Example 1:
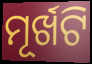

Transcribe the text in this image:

ମୂର୍ଖଟି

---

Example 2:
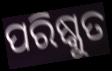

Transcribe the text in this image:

ପରିଷ୍କୁତ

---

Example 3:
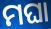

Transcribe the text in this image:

ମଘା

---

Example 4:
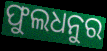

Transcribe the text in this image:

ଫୁଲଧନୁର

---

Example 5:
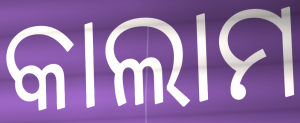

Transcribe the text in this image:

କାଲାମ